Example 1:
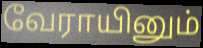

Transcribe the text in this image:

வேராயினும்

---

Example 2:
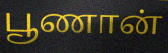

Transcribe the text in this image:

பூணான்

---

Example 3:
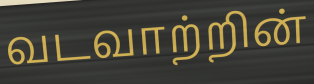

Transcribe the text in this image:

வடவாற்றின்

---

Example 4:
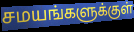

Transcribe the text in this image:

சமயங்களுக்குள்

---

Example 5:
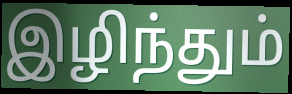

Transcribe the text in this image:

இழிந்தும்